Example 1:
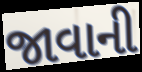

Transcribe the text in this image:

જાવાની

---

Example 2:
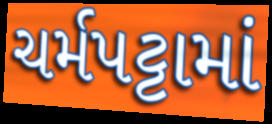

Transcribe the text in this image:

ચર્મપટ્ટામાં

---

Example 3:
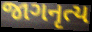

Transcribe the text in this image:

જાગનૃત્ય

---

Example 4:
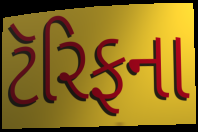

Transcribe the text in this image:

ટૅરિફના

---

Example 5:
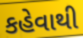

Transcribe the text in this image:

કહેવાથી